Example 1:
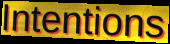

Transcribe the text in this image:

Intentions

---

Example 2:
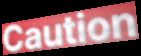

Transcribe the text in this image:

Caution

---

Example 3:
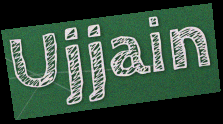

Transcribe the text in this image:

Ujjain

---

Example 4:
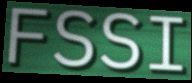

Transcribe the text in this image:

FSSI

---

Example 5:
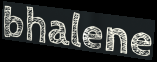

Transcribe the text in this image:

bhalene